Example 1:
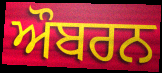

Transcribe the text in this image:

ਔਬਰਨ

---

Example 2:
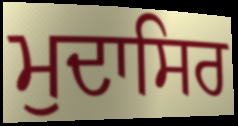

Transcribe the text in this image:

ਮੁਦਾਸਿਰ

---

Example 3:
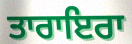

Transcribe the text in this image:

ਤਾਰਾਇਰਾ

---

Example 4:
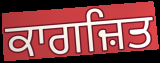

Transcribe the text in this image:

ਕਾਗਜ਼ਿਤ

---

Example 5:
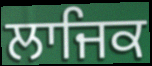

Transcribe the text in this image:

ਲਾਜਿਕ